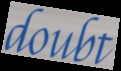
doubt